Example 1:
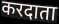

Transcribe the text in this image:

करदाता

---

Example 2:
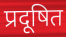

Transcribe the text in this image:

प्रदूषित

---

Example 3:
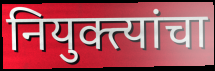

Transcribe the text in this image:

नियुक्त्यांचा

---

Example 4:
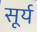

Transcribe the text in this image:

सूर्य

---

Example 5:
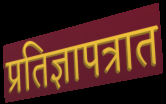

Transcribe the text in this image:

प्रतिज्ञापत्रात